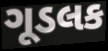
ગૂડલક